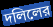
দলিলের